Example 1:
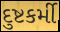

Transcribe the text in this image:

દુષ્ટકર્મી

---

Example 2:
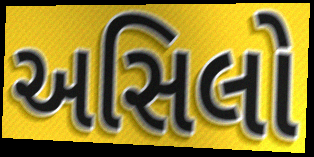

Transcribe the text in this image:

અસિલો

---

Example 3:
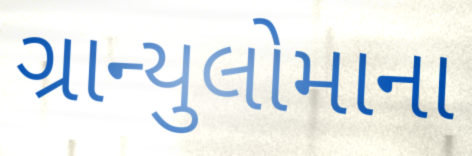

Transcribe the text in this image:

ગ્રાન્યુલોમાના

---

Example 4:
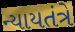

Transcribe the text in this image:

ન્યાયતંત્રે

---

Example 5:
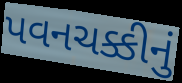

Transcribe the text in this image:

પવનચક્કીનું